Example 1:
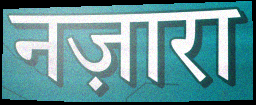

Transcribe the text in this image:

नज़ारा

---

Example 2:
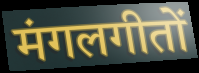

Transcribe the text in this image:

मंगलगीतों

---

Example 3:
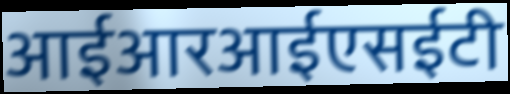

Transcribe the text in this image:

आईआरआईएसईटी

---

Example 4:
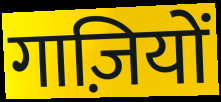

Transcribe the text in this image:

गाज़ियों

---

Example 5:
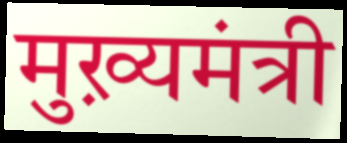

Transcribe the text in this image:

मुख़्यमंत्री